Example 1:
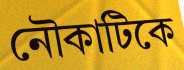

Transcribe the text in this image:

নৌকাটিকে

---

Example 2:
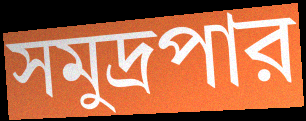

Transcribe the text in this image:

সমুদ্রপার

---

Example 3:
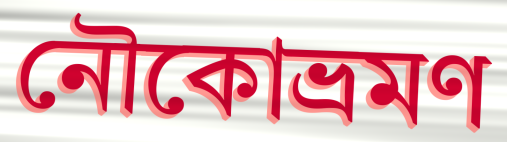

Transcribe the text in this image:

নৌকোভ্রমণ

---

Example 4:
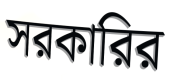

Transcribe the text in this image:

সরকারির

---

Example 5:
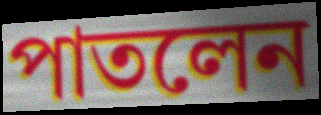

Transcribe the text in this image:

পাতলেন